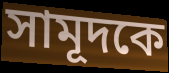
সামূদকে